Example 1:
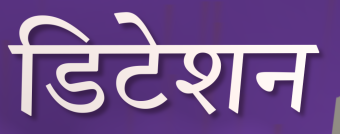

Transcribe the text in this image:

डिटेशन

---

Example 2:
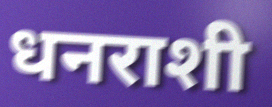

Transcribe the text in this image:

धनराशी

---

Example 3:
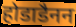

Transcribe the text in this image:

होडाडैनन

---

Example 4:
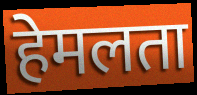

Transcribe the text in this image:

हेमलता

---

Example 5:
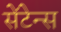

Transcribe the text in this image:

सेंटेन्स